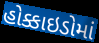
હોક્કાઇડોમાં